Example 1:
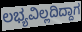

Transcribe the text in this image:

ಲಭ್ಯವಿಲ್ಲದಿದ್ದಾಗ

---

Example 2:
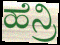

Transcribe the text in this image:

ಹೆನ್ರಿ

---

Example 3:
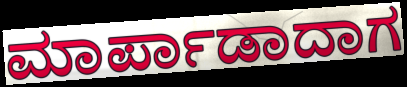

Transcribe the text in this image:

ಮಾರ್ಪಾಡಾದಾಗ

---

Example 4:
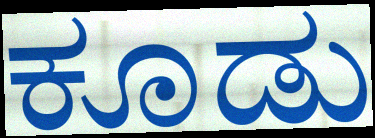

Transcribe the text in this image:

ಕೂಡು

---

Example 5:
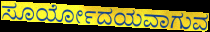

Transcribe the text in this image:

ಸೂರ್ಯೋದಯವಾಗುವ